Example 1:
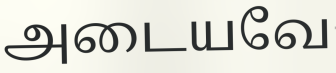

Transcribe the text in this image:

அடையவே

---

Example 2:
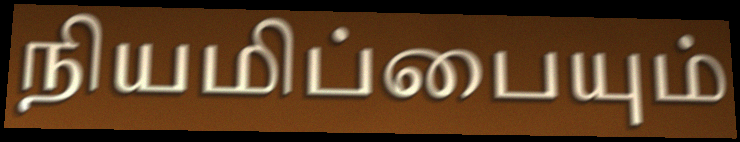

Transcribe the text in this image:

நியமிப்பையும்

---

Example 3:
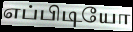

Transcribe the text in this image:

எப்பிடியோ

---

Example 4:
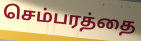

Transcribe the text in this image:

செம்பரத்தை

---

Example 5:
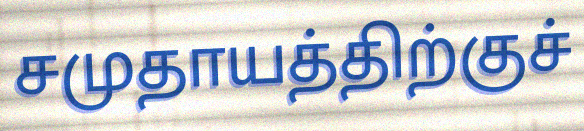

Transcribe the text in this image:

சமுதாயத்திற்குச்